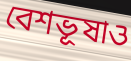
বেশভূষাও